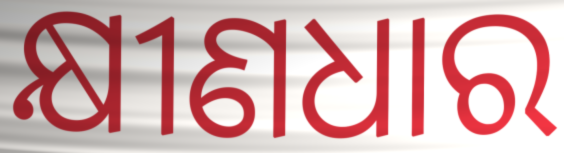
କ୍ଷୀଣଧାର